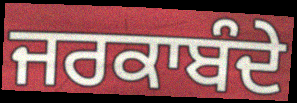
ਜਰਕਾਬੰਦੇ